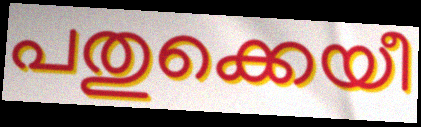
പതുക്കെയീ